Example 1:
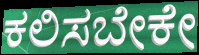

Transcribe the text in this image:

ಕಲಿಸಬೇಕೇ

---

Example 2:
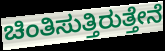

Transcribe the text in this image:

ಚಿಂತಿಸುತ್ತಿರುತ್ತೇನೆ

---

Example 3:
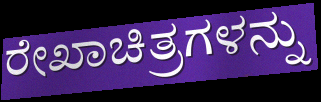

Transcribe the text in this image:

ರೇಖಾಚಿತ್ರಗಳನ್ನು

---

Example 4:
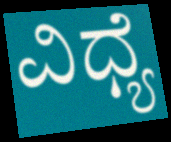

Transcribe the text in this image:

ವಿಧ್ಯೆ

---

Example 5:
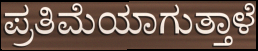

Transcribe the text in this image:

ಪ್ರತಿಮೆಯಾಗುತ್ತಾಳೆ